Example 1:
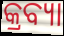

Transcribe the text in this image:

କ୍ରବ୍ୟା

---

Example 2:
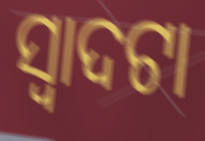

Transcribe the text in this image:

ସ୍ଵାଦଟା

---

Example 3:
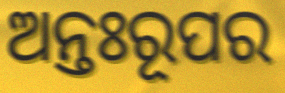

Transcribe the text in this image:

ଅନ୍ତଃରୂପର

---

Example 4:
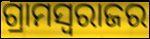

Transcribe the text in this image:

ଗ୍ରାମସ୍ୱରାଜର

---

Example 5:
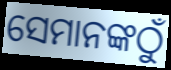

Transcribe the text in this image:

ସେମାନଙ୍କଠୁଁ